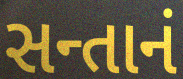
સન્તાનં